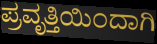
ಪ್ರವೃತ್ತಿಯಿಂದಾಗಿ